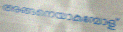
അങ്ങനെയാകുമ്പോള്